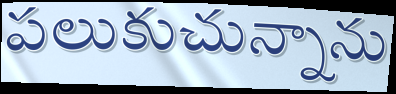
పలుకుచున్నాను